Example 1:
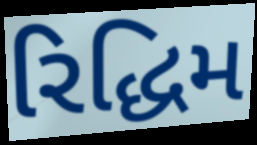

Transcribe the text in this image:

રિદ્ધિમ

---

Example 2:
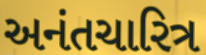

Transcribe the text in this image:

અનંતચારિત્ર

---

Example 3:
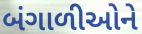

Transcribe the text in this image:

બંગાળીઓને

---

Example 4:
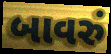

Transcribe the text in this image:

બાવરું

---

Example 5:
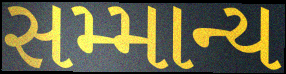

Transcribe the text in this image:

સમ્માન્ય